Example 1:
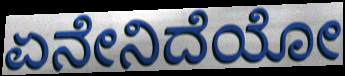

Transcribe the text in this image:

ಏನೇನಿದೆಯೋ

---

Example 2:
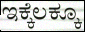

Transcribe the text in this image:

ಇಕ್ಕೆಲಕ್ಕೂ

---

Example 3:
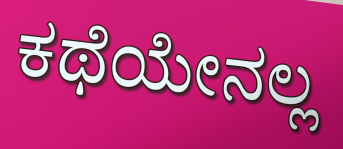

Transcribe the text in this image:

ಕಥೆಯೇನಲ್ಲ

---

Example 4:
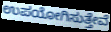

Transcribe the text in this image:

ಉಪಯೋಗಿಸುತ್ತೇವೆ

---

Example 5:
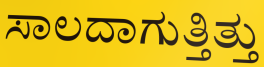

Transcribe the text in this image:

ಸಾಲದಾಗುತ್ತಿತ್ತು